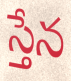
స్తేన